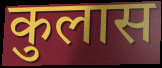
कुलास